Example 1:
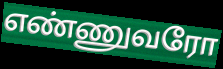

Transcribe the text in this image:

எண்ணுவரோ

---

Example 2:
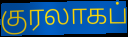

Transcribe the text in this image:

குரலாகப்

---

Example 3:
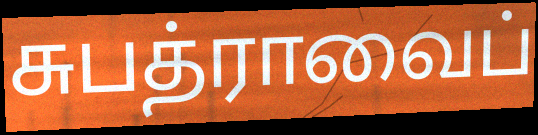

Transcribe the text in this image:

சுபத்ராவைப்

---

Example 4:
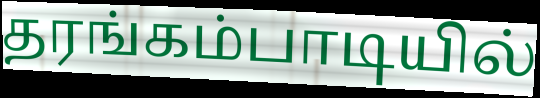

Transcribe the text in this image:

தரங்கம்பாடியில்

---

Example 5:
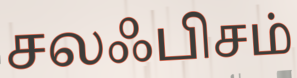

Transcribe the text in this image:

சலஃபிசம்